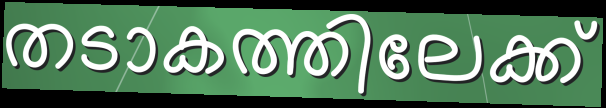
തടാകത്തിലേക്ക്